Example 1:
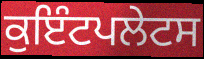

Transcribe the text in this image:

ਕੁਇੰਟਪਲੇਟਸ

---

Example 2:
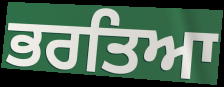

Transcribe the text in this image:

ਭਰਤਿਆ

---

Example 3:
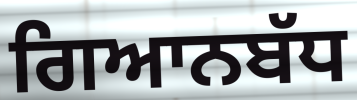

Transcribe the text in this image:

ਗਿਆਨਬੱਧ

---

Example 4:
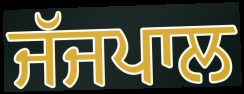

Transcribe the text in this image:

ਜੱਜਪਾਲ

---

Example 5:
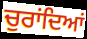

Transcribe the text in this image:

ਚੁਰਾਂਦਿਆਂ